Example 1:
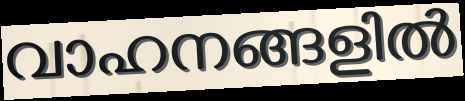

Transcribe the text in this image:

വാഹനങ്ങളിൽ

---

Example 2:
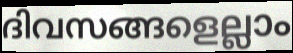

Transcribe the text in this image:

ദിവസങ്ങളെല്ലാം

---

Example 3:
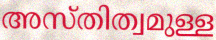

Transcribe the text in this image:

അസ്തിത്വമുള്ള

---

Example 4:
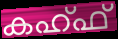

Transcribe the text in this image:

കഹ്ഫ്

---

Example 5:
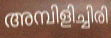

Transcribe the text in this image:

അമ്പിളിച്ചിരി